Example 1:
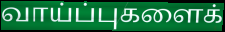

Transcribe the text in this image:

வாய்ப்புகளைக்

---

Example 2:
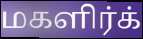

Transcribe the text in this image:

மகளிர்க்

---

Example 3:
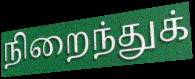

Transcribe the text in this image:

நிறைந்துக்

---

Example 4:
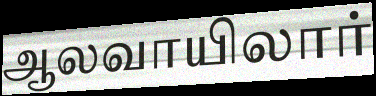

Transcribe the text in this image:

ஆலவாயிலார்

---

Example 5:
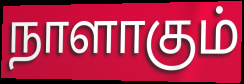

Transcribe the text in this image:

நாளாகும்